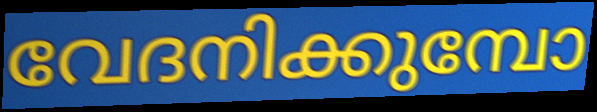
വേദനിക്കുമ്പോ